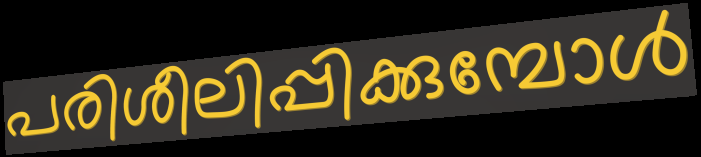
പരിശീലിപ്പിക്കുമ്പോൾ